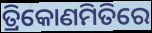
ତ୍ରିକୋଣମିତିରେ